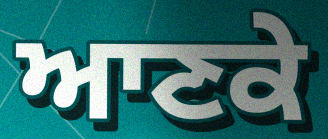
ਆਣਕੇ